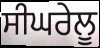
ਸੀਘਰੇਲੂ